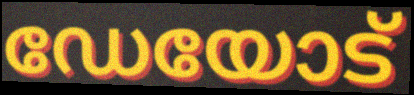
ഡേയോട്